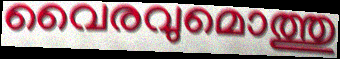
വൈരവുമൊത്തു